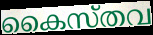
കൈസ്തവ